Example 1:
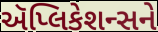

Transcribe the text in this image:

ઍપ્લિકેશન્સને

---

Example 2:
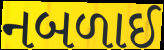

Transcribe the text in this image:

નબળાઈ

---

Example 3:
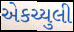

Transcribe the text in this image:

એકચ્યુલી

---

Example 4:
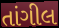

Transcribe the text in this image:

તાંગીલ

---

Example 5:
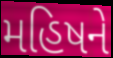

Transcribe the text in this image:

મહિષને